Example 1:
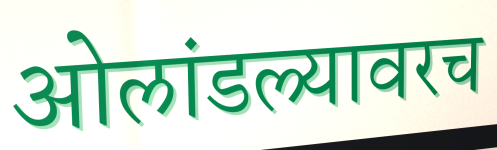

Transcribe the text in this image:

ओलांडल्यावरच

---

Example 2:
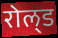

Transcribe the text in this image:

रोल्ड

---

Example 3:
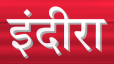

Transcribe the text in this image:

इंदीरा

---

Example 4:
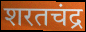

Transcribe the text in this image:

शरतचंद्र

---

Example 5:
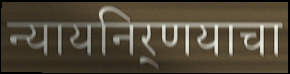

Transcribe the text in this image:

न्यायनिर्णयाचा